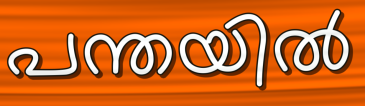
പന്തയിൽ